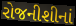
રોજનીશીનાં